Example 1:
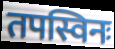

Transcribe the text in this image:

तपस्विनः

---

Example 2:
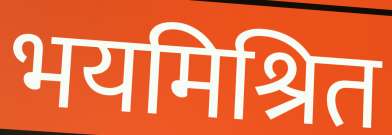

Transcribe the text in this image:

भयमिश्रित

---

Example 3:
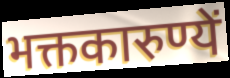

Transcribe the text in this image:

भक्तकारुण्यें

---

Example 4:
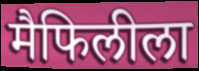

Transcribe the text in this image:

मैफिलीला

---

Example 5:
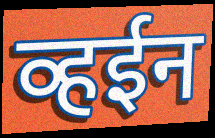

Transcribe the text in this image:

व्हईन